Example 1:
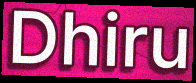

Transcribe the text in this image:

Dhiru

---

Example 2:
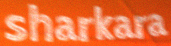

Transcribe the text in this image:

sharkara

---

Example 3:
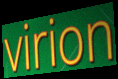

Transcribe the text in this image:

virion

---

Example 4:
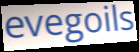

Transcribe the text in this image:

evegoils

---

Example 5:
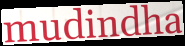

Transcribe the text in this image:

mudindha